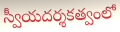
స్వీయదర్శకత్వంలో